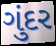
ગુંદર